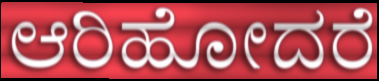
ಆರಿಹೋದರೆ